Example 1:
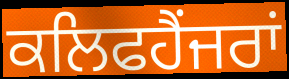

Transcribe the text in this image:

ਕਲਿਫਹੈਂਜਰਾਂ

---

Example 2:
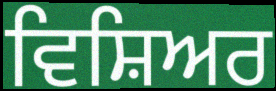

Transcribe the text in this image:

ਵਿਸ਼ਿਅਰ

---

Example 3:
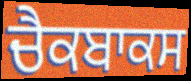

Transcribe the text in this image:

ਚੈਕਬਾਕਸ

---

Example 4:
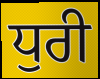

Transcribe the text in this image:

ਧੁਰੀ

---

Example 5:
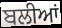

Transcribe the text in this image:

ਬਲੀਆਂ